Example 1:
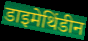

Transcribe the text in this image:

डाइमेथिंडीन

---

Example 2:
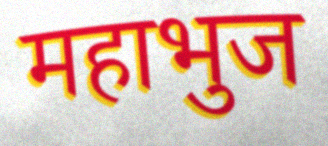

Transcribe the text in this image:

महाभुज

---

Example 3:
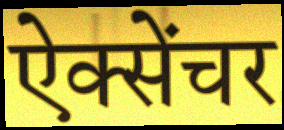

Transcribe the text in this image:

ऐक्सेंचर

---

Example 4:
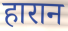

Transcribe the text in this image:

हारान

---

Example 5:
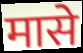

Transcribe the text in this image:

मासे